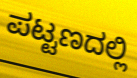
ಪಟ್ಟಣದಲ್ಲಿ